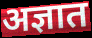
अज्ञात